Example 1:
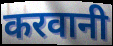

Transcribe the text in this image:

करवानी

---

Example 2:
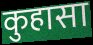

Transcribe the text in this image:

कुहासा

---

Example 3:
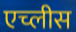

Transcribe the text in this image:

एच्लीस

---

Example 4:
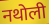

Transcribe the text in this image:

नथोली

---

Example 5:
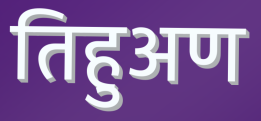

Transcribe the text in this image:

तिहुअण